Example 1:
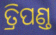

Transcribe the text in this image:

ତ୍ରିପଣ୍ଡ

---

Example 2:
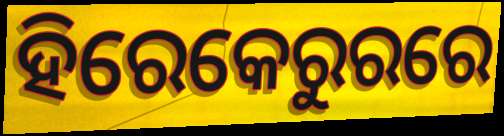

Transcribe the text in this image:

ହିରେକେରୁରରେ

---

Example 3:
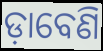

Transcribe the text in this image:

ଡ଼ାବେଣି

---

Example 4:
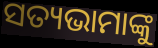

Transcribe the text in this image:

ସତ୍ୟଭାମାଙ୍କୁ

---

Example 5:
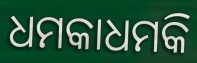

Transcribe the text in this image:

ଧମକାଧମକି